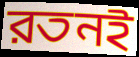
রতনই